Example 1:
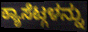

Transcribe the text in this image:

ಕ್ಯಾಸೆಟ್ಗಳನ್ನು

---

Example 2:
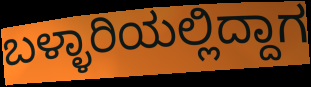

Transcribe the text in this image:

ಬಳ್ಳಾರಿಯಲ್ಲಿದ್ದಾಗ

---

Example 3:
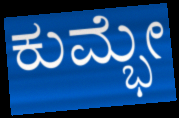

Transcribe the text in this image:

ಕುಮ್ಭೇ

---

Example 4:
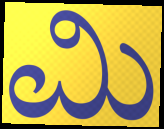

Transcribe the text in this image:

ಮಿ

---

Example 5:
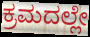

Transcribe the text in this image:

ಕ್ರಮದಲ್ಲೇ